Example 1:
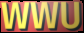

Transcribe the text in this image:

WWU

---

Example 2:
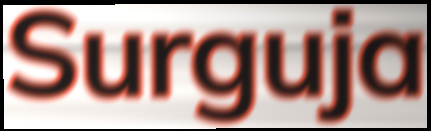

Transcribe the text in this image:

Surguja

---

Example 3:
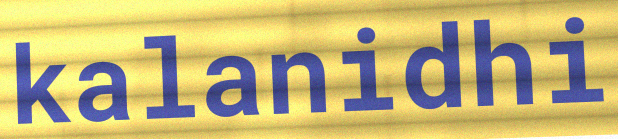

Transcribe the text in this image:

kalanidhi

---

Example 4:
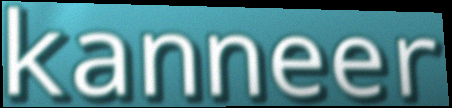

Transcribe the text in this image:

kanneer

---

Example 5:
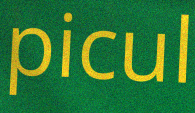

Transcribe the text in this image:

picul